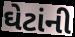
ઘેટાંની